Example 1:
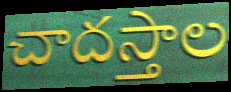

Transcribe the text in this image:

చాదస్తాల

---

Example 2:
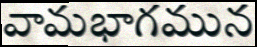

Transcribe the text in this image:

వామభాగమున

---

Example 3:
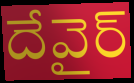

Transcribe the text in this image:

దేవైర్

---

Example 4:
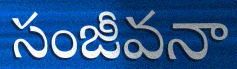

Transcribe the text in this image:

సంజీవనా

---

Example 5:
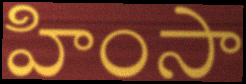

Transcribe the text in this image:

హింసా